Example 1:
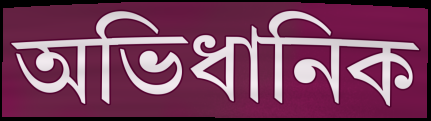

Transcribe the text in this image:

অভিধানিক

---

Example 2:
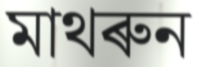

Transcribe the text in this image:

মাথৰুন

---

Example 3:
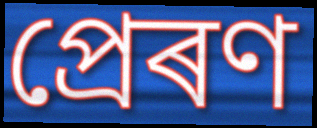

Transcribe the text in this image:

প্ৰেৰণ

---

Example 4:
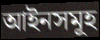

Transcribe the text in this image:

আইনসমূহ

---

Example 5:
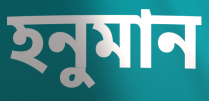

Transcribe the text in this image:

হনুমান